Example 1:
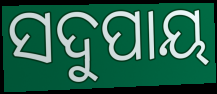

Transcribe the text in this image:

ସଦୁପାୟ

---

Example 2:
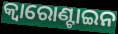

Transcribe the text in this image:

କ୍ୱାରୋଣ୍ଟାଇନ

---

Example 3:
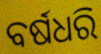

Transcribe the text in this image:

ବର୍ଷଧରି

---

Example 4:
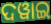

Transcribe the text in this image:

ଦୱାଇ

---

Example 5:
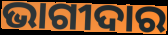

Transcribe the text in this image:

ଭାଗୀଦାର